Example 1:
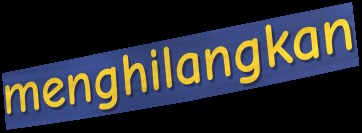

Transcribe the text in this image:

menghilangkan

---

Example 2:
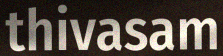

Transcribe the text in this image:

thivasam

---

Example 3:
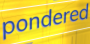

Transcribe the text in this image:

pondered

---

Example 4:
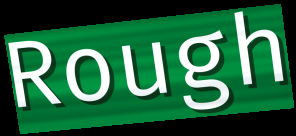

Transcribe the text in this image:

Rough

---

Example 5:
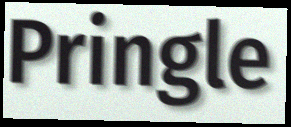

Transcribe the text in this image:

Pringle